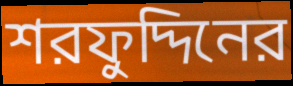
শরফুদ্দিনের